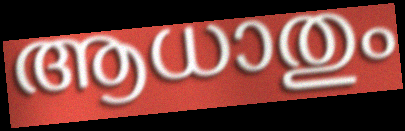
ആധാതും